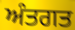
ਅੰਤਗਤ